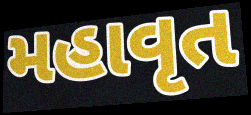
મહાવૃત